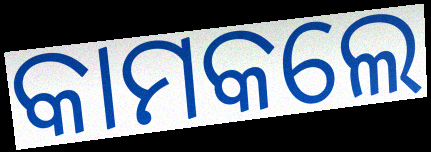
କାମକଲେ